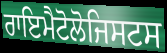
ਰਾਇਮੈਟੋਲੋਜਿਸਟਸ